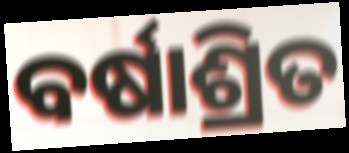
ବର୍ଷାଶ୍ରିତ